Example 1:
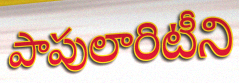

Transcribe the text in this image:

పాపులారిటీని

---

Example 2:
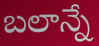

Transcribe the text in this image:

బలాన్నే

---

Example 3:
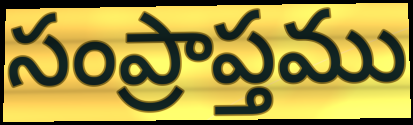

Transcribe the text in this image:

సంప్రాప్తము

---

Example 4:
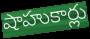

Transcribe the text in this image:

షాహుకార్లు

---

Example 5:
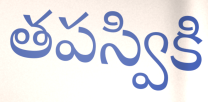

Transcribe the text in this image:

తపస్వికి